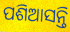
ପଶିଆସନ୍ତି